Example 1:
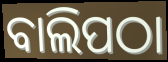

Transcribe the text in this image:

ବାଲିପଠା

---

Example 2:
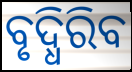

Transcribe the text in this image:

ବୃଦ୍ଧିରିବ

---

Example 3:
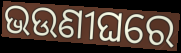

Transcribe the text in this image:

ଭଉଣୀଘରେ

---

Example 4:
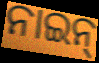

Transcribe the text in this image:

ନାଇନ୍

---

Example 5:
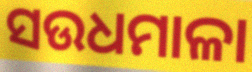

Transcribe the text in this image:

ସଉଧମାଳା